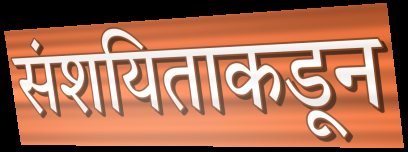
संशयिताकडून